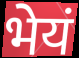
भेयं